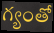
గ్యంతో